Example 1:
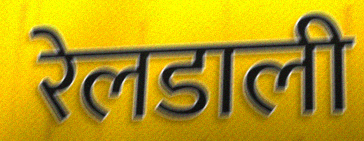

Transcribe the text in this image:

रेलडाली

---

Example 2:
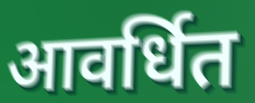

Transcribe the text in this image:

आवर्धित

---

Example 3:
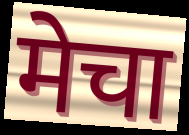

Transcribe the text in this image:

मेचा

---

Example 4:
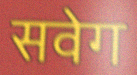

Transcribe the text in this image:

सवेग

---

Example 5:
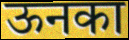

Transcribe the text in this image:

ऊनका